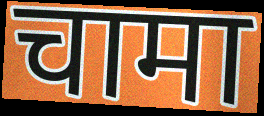
चामा